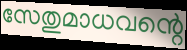
സേതുമാധവന്റെ